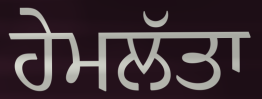
ਹੇਮਲੱਤਾ